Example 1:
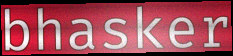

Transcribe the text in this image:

bhasker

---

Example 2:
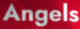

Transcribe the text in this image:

Angels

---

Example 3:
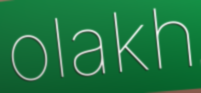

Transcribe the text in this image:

olakh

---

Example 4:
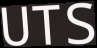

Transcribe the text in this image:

UTS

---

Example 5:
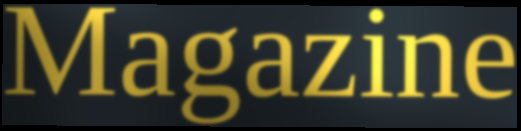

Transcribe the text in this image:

Magazine